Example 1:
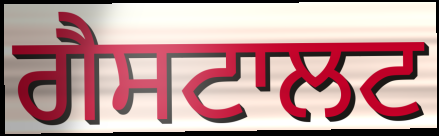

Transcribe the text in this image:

ਗੈਸਟਾਲਟ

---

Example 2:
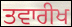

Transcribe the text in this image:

ਤਵਾਰੀਖ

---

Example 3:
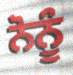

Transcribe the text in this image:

ਨੋਨੂੰ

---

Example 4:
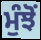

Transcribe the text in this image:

ਮੁੰਝੋਂ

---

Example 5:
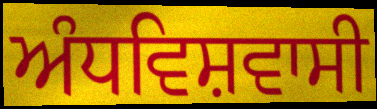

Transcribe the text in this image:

ਅੰਧਵਿਸ਼ਵਾਸੀ